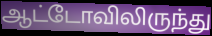
ஆட்டோவிலிருந்து